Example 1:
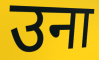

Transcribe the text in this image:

उना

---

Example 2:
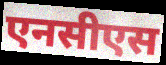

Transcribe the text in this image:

एनसीएस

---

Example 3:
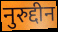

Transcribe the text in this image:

नुरुद्दीन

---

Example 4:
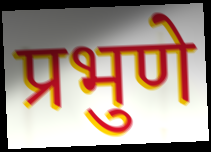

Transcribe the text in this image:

प्रभुणे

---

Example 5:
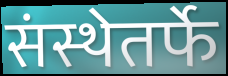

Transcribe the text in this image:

संस्थेतर्फे